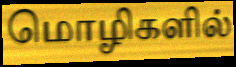
மொழிகளில்